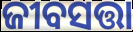
ଜୀବସତ୍ତା